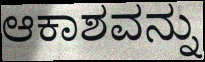
ಆಕಾಶವನ್ನು